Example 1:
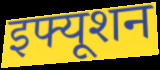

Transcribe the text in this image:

इफ्यूशन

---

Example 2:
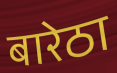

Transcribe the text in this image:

बारेठा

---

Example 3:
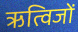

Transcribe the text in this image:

ऋत्विजों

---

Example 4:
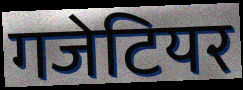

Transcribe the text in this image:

गजेटियर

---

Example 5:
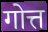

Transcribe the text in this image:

गोत्त